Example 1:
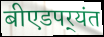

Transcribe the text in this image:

बीएडपर्यंत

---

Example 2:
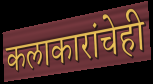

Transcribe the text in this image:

कलाकारांचेही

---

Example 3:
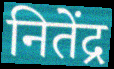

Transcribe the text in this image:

नितेंद्र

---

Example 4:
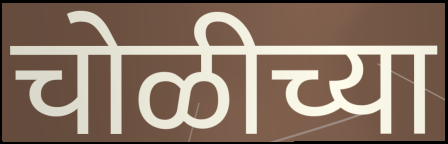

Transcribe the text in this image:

चोळीच्या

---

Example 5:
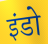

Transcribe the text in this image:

इंडो